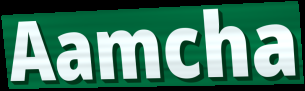
Aamcha